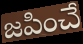
జపించే